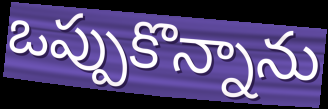
ఒప్పుకొన్నాను